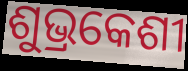
ଶୁଭ୍ରକେଶୀ